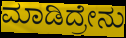
ಮಾಡಿದ್ರೇನು